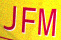
JFM